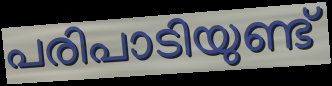
പരിപാടിയുണ്ട്